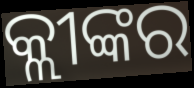
କ୍ଲୀଙ୍କର